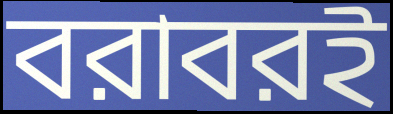
বরাবরই